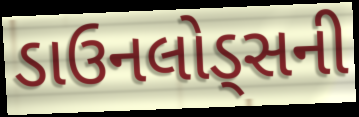
ડાઉનલોડ્સની